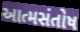
આત્મસંતોષ